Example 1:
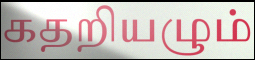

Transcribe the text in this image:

கதறியழும்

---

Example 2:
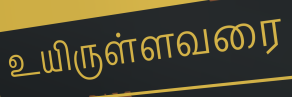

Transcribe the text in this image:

உயிருள்ளவரை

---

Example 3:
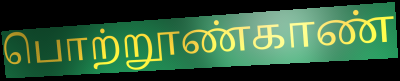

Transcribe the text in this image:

பொற்றூண்காண்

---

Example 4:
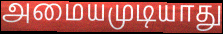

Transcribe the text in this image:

அமையமுடியாது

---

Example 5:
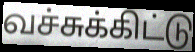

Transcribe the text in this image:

வச்சுக்கிட்டு